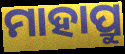
ମାହାପ୍ରୁ